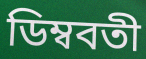
ডিম্ববতী